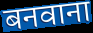
बनवाना